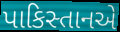
પાકિસ્તાનએ